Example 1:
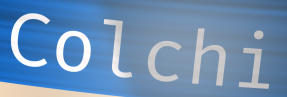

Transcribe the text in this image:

Colchi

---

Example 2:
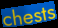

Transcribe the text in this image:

chests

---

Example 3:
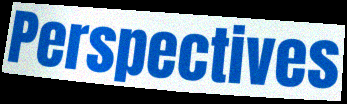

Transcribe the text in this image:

Perspectives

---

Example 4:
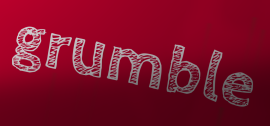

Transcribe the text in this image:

grumble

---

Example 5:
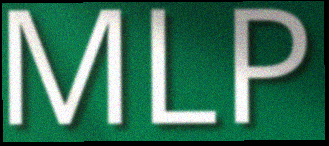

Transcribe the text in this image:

MLP